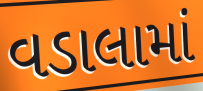
વડાલામાં